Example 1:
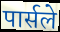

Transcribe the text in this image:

पार्सले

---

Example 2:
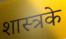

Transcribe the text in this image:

शास्त्रके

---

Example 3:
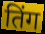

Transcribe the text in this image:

तिंग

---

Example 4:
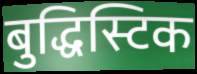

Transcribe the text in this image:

बुद्धिस्टिक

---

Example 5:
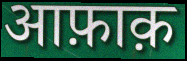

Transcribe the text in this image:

आफ़ाक़